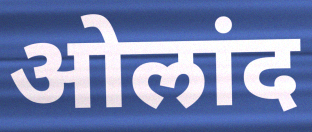
ओलांद